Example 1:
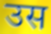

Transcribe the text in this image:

उस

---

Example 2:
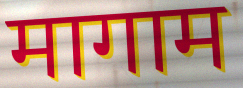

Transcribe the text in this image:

मागाम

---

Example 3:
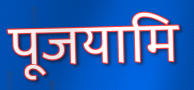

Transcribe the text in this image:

पूजयामि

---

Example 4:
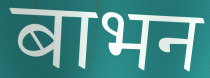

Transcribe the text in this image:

बाभन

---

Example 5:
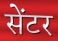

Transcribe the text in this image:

सेंटर